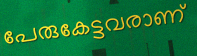
പേരുകേട്ടവരാണ്